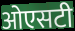
ओएसटी